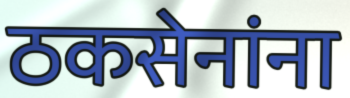
ठकसेनांना